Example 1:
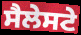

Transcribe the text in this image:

ਸੈਲੇਸਟੇ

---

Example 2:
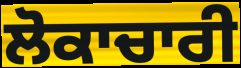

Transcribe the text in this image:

ਲੋਕਾਚਾਰੀ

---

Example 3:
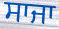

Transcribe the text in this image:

ਸਾਜਾ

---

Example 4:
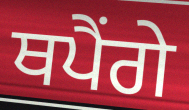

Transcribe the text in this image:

ਥਪੈਂਗੇ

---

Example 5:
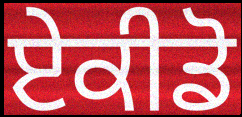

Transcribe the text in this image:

ਏਕੀਡੋ